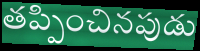
తప్పించినపుడు